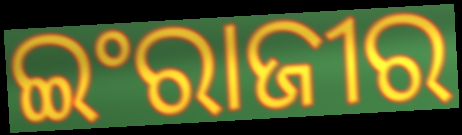
ଇଂରାଜୀର